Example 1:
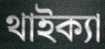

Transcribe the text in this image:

থাইক্যা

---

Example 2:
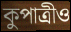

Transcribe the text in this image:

কুপাত্রীও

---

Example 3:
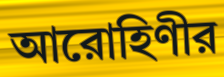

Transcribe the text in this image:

আরোহিণীর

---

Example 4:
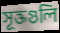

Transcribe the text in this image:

সূক্তগুলি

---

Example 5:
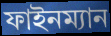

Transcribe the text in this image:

ফাইনম্যান